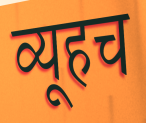
व्यूहच